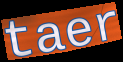
taer